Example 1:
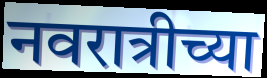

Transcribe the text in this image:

नवरात्रीच्या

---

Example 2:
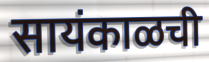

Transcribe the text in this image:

सायंकाळची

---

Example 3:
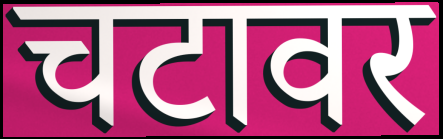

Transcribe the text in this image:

चटावर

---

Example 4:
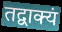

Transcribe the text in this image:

तद्वाक्यं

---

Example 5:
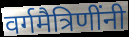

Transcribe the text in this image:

वर्गमैत्रिणींनी